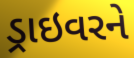
ડ્રાઇવરને